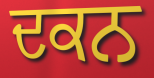
ਦਕਨ